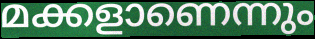
മക്കളാണെന്നും